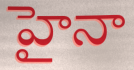
హైనా